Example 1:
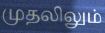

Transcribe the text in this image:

முதலிலும்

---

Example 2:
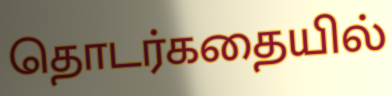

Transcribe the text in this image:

தொடர்கதையில்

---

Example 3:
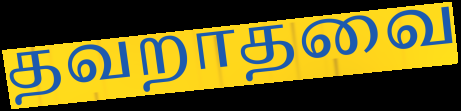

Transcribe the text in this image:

தவறாதவை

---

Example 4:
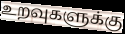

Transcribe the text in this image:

உறவுகளுக்கு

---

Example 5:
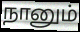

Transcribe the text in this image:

நானும்